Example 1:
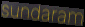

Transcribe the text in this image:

sundaram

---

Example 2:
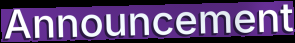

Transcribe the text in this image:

Announcement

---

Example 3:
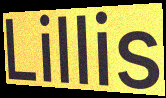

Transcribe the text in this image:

Lillis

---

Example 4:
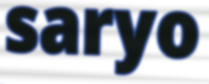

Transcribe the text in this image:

saryo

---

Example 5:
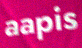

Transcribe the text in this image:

aapis